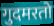
गुदमरतो